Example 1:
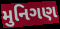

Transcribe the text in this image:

મુનિગણ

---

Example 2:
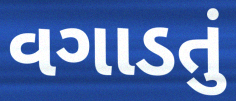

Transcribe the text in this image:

વગાડતું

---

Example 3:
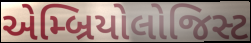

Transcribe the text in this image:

એમ્બ્રિયોલોજિસ્ટ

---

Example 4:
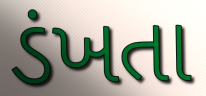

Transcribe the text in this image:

ડંખતા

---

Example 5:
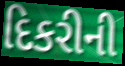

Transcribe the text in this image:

દિકરીની